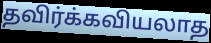
தவிர்க்கவியலாத